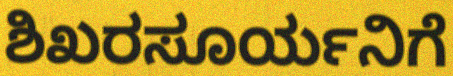
ಶಿಖರಸೂರ್ಯನಿಗೆ